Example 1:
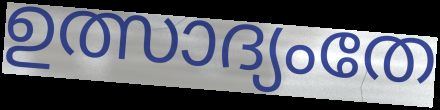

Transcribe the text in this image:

ഉത്സാദ്യംതേ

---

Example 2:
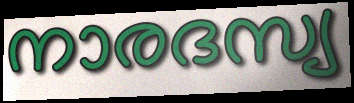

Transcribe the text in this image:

നാരദസ്യ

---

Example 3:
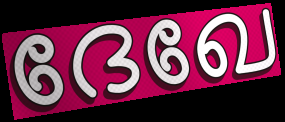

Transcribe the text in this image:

ദേഖേ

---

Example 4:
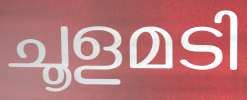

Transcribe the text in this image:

ചൂളമടി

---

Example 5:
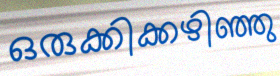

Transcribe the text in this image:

ഒരുക്കിക്കഴിഞ്ഞു